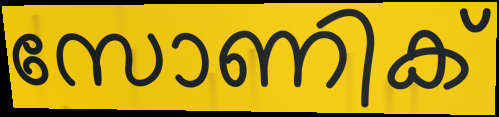
സോണിക്